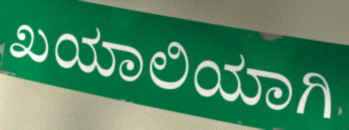
ಖಯಾಲಿಯಾಗಿ